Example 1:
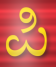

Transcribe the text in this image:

ಪಿ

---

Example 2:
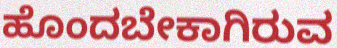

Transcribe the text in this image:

ಹೊಂದಬೇಕಾಗಿರುವ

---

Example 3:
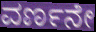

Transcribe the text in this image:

ವರ್ಣನೇ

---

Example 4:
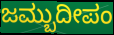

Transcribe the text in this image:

ಜಮ್ಬುದೀಪಂ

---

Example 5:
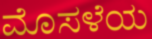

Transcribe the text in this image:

ಮೊಸಳೆಯ